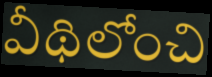
వీథిలోంచి